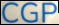
CGP